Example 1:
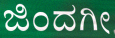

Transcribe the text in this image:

ಜಿಂದಗೀ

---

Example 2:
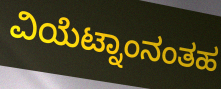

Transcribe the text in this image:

ವಿಯೆಟ್ನಾಂನಂತಹ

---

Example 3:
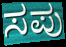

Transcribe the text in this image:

ಸಪು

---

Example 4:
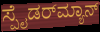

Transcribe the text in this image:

ಸ್ಪೈಡರ್‌ಮ್ಯಾನ್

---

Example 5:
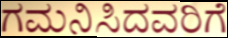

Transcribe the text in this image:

ಗಮನಿಸಿದವರಿಗೆ